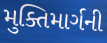
મુક્તિમાર્ગની